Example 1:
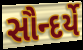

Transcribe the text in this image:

સૌન્દર્યે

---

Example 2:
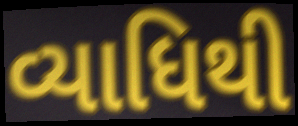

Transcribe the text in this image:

વ્યાધિથી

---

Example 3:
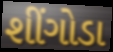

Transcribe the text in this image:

શીંગોડા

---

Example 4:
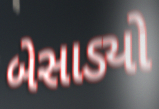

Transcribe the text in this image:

બેસાડ્યો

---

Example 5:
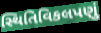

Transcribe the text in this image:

સ્થિતિવિકલપણું